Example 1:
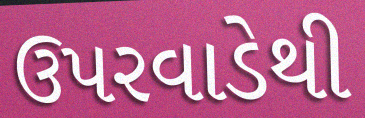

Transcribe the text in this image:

ઉપરવાડેથી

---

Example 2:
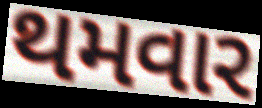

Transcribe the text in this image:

થમવાર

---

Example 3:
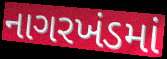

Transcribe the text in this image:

નાગરખંડમાં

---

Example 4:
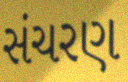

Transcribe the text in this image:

સંચરણ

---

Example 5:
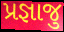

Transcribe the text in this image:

પ્રજ્ઞાજુ